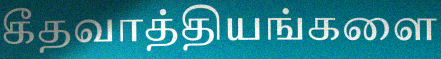
கீதவாத்தியங்களை